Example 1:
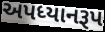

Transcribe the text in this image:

અપધ્યાનરૂપ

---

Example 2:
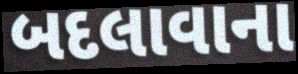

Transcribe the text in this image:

બદલાવાના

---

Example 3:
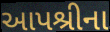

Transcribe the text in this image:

આપશ્રીના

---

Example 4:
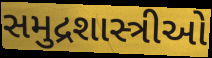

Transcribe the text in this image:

સમુદ્રશાસ્ત્રીઓ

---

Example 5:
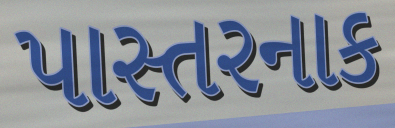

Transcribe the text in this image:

પાસ્તરનાક